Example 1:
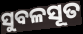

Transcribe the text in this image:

ସୁବଳସୂତ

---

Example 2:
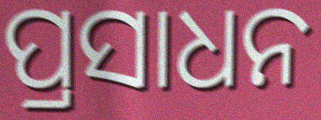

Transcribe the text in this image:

ପ୍ରସାଧନ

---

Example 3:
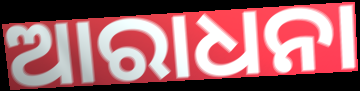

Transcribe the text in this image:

ଆରାଧନା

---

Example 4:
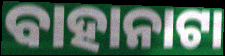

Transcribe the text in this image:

ବାହାନାଟା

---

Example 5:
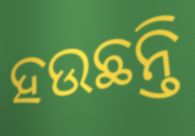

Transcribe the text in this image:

ହଉଛନ୍ତି